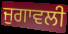
ਜੁਗਾਵਲੀ